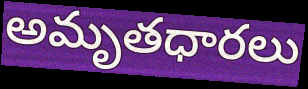
అమృతధారలు